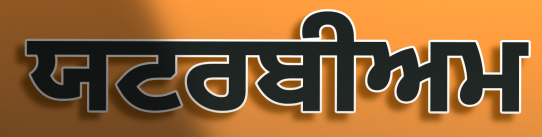
ਯਟਰਬੀਅਮ